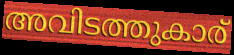
അവിടത്തുകാര്